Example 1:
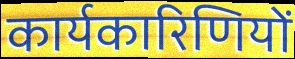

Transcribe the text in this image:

कार्यकारिणियों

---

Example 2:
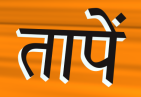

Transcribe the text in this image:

तापें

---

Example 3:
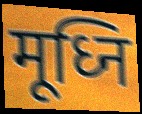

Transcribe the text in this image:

मूध्नि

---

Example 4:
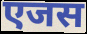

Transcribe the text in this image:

एजस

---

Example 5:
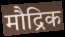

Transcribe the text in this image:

मौद्रिक